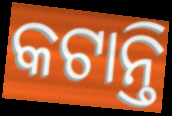
କଟାନ୍ତି